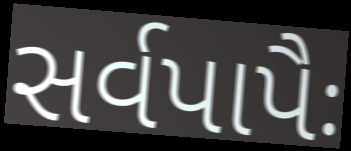
સર્વપાપૈઃ